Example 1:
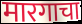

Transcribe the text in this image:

मारगाचा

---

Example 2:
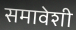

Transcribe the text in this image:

समावेशी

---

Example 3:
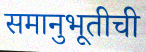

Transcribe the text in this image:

समानुभूतीची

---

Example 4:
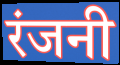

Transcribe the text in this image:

रंजनी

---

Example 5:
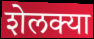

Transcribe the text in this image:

शेलक्या